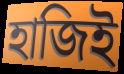
হাজিই